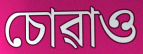
চোৱাও